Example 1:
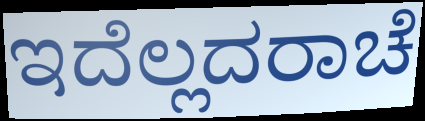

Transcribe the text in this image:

ಇದೆಲ್ಲದರಾಚೆ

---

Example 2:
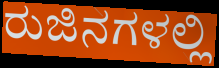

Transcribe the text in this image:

ರುಜಿನಗಳಲ್ಲಿ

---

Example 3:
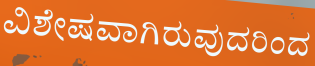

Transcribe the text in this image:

ವಿಶೇಷವಾಗಿರುವುದರಿಂದ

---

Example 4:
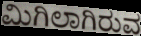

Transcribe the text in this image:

ಮಿಗಿಲಾಗಿರುವ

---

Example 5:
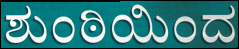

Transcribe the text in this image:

ಶುಂಠಿಯಿಂದ